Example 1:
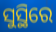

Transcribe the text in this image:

ସୁସ୍ଥିରେ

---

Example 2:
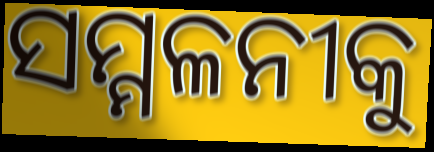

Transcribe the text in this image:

ସମ୍ମଳନୀକୁ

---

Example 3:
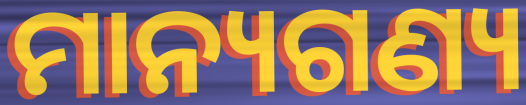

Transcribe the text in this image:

ମାନ୍ୟଗଣ୍ୟ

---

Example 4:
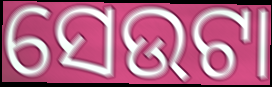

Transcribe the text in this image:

ସେଉଟା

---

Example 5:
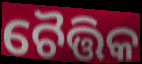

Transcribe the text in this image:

ଚୈତ୍ତିକ